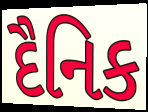
દૈનિક